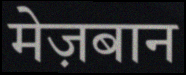
मेज़बान